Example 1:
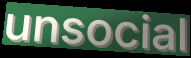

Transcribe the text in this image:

unsocial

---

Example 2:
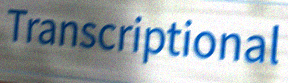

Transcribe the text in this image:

Transcriptional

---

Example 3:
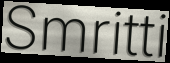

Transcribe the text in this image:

Smritti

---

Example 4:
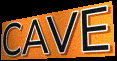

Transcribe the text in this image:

CAVE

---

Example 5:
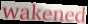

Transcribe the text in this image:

wakened